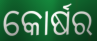
କୋର୍ଷର